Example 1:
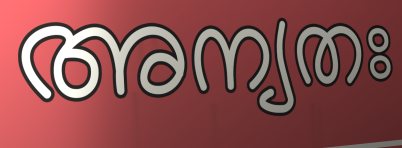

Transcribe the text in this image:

അന്യതഃ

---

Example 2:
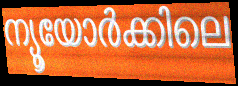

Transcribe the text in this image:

ന്യൂയോർക്കിലെ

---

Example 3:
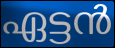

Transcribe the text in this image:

ഏട്ടൻ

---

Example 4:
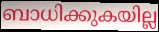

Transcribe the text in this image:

ബാധിക്കുകയില്ല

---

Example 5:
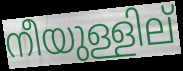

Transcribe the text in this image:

നീയുള്ളില്